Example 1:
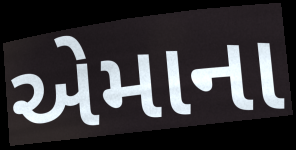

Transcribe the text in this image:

એમાના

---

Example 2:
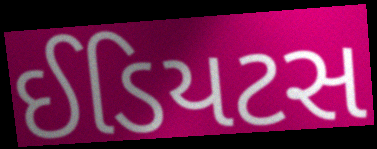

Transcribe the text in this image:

ઈડિયટસ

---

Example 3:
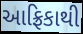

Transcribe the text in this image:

આફ્રિકાથી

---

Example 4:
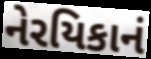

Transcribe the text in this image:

નેરયિકાનં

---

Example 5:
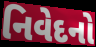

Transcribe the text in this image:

નિવેદનો